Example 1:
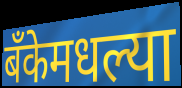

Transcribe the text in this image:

बँकेमधल्या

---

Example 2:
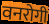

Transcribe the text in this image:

वनरोगी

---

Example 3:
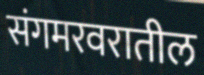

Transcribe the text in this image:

संगमरवरातील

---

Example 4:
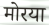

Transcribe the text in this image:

मोरया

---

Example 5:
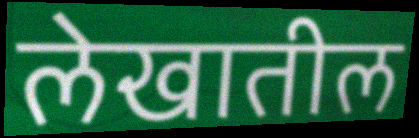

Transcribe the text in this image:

लेखातील